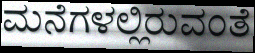
ಮನೆಗಳಲ್ಲಿರುವಂತೆ